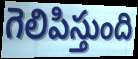
గెలిపిస్తుంది